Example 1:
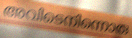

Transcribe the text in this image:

അവിടെനിന്നൊരു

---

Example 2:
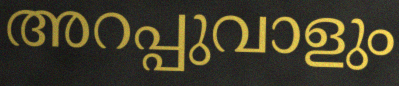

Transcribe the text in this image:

അറപ്പുവാളും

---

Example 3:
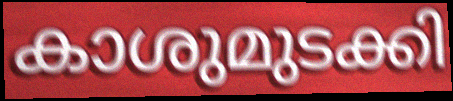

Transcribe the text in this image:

കാശുമുടക്കി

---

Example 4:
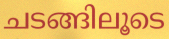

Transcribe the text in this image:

ചടങ്ങിലൂടെ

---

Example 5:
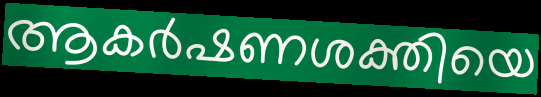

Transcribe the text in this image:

ആകർഷണശക്തിയെ